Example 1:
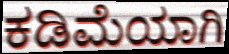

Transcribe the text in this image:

ಕಡಿಮೆಯಾಗಿ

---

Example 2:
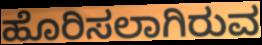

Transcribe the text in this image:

ಹೊರಿಸಲಾಗಿರುವ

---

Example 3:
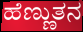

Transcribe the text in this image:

ಹೆಣ್ಣುತನ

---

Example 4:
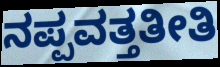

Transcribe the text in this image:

ನಪ್ಪವತ್ತತೀತಿ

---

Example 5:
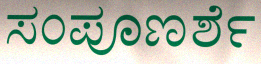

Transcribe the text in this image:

ಸಂಪೂಣರ್ಶೆ